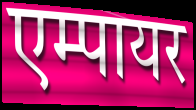
एम्पायर